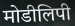
मोडीलिपी